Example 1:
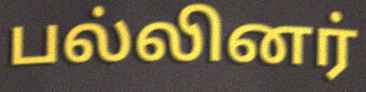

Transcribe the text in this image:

பல்லினர்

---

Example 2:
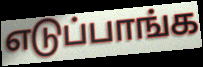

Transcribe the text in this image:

எடுப்பாங்க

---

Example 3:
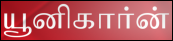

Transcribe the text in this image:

யூனிகார்ன்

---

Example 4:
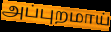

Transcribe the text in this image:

அப்புறமாய்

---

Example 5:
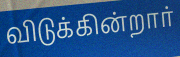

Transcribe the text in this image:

விடுக்கின்றார்